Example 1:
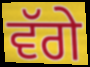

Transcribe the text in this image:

ਵੱਗੇ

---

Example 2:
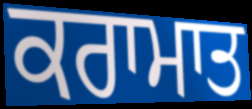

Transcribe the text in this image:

ਕਰਾਮਾਤ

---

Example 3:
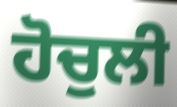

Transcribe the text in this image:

ਹੋਚੁਲੀ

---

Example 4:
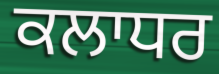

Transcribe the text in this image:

ਕਲਾਧਰ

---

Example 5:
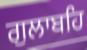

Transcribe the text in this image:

ਗੁਲਾਬਹਿ